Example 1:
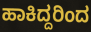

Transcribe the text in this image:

ಹಾಕಿದ್ದರಿಂದ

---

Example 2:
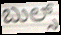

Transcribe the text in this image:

ಬುಲ್ಸ್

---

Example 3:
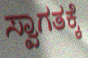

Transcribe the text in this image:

ಸ್ವಾಗತಕ್ಕೆ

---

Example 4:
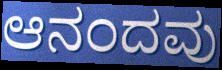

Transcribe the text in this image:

ಆನಂದವು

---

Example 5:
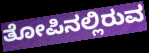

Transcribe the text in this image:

ತೋಪಿನಲ್ಲಿರುವ